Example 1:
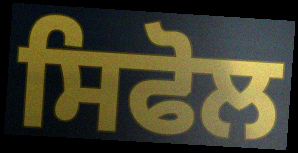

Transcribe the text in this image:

ਸਿਫੋਲ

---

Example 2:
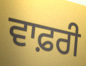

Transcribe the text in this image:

ਵਾਫ਼ਰੀ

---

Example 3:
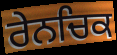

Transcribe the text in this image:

ਰੇਨਚਿਕ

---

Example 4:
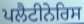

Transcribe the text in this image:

ਪਲੈਟੀਨੇਰਿਸ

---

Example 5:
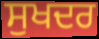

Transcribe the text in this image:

ਸੁਖਦਰ